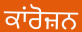
ਕਾਂਰੋਜ਼ਨ